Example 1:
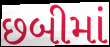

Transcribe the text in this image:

છબીમાં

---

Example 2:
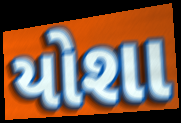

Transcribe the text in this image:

યોશા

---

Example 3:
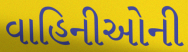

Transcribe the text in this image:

વાહિનીઓની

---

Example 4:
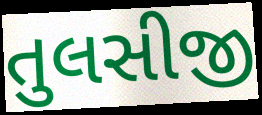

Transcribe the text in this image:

તુલસીજી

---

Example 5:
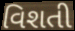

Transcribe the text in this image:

વિશતી